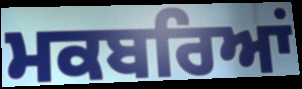
ਮਕਬਰਿਆਂ